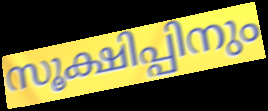
സൂക്ഷിപ്പിനും